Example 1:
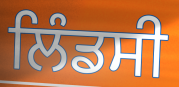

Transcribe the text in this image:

ਲਿੰਡਸੀ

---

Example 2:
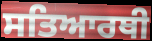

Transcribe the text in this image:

ਸਤਿਆਰਥੀ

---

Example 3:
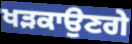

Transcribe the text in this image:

ਖੜਕਾਉਣਗੇ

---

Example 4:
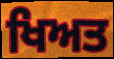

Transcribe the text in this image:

ਖਿਅਤ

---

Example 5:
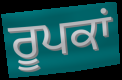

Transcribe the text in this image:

ਰੂਪਕਾਂ